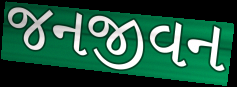
જનજીવન